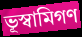
ভূস্বামিগণ